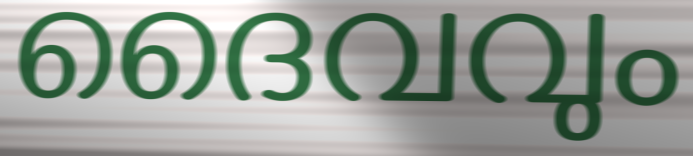
ദൈവവും